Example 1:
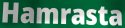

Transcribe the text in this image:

Hamrasta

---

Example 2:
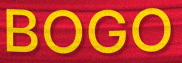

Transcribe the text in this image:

BOGO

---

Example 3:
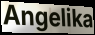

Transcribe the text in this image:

Angelika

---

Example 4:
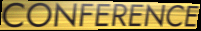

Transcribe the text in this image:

CONFERENCE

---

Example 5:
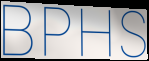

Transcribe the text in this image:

BPHS